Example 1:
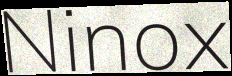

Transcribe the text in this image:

Ninox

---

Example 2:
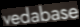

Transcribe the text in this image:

vedabase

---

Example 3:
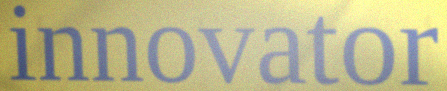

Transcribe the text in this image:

innovator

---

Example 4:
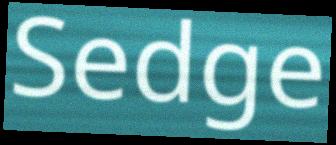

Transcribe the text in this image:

Sedge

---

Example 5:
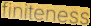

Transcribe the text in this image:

finiteness